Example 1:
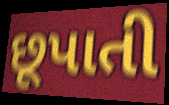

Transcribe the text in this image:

છૂપાતી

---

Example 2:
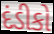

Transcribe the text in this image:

દંડીકો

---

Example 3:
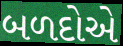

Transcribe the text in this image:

બળદોએ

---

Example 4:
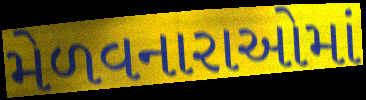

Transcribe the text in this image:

મેળવનારાઓમાં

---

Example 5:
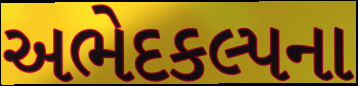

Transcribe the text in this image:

અભેદકલ્પના